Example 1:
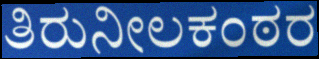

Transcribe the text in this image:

ತಿರುನೀಲಕಂಠರ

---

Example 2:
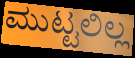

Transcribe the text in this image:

ಮುಟ್ಟಲಿಲ್ಲ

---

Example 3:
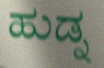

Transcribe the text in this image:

ಹುಡ್ನ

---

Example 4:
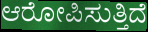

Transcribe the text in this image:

ಆರೋಪಿಸುತ್ತಿದೆ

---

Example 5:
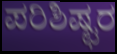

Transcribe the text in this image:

ಪರಿಶಿಷ್ಟರ